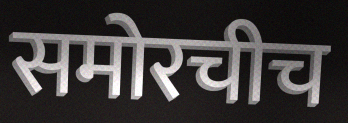
समोरचीच